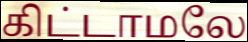
கிட்டாமலே